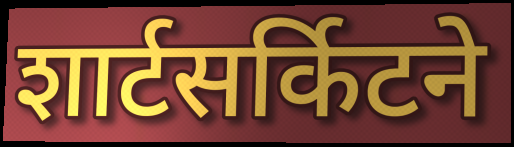
शार्टसर्किटने